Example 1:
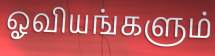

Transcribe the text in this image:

ஓவியங்களும்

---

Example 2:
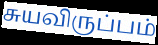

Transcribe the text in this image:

சுயவிருப்பம்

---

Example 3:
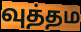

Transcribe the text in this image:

வுத்தம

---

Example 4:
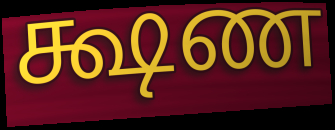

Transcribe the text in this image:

க்ஷண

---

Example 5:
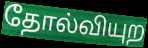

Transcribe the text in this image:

தோல்வியுற